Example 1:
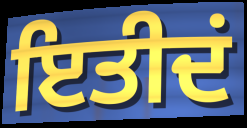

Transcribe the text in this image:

ਇਤੀਦਂ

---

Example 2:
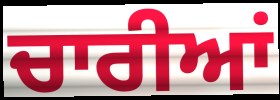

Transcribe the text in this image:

ਚਾਰੀਆਂ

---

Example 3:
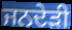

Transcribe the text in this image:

ਜਨਦੇੜੀ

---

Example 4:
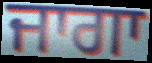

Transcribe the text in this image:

ਜਾਗਾ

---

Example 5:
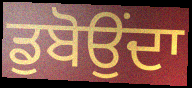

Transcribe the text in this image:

ਡੁਬੋਉਂਦਾ